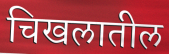
चिखलातील